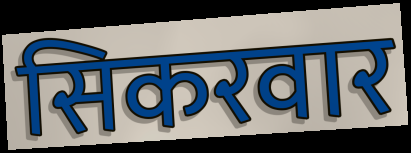
सिकरवार